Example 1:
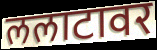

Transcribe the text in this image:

ललाटावर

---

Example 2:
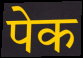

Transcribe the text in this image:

पेक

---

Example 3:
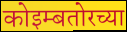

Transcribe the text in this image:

कोइम्बतोरच्या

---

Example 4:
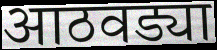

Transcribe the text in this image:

आठवड्या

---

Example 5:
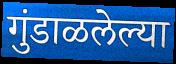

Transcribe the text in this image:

गुंडाळलेल्या